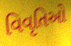
વિવૃતિઓ